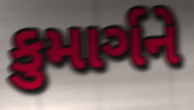
કુમાર્ગને